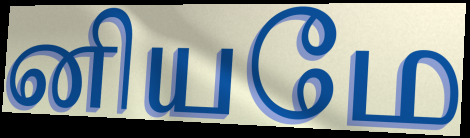
னியமே